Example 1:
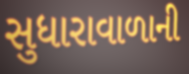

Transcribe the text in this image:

સુધારાવાળાની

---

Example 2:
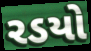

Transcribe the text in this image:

રડયો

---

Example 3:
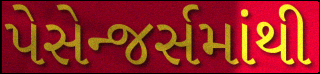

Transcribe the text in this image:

પેસેન્જર્સમાંથી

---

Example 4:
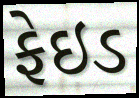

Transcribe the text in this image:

ફેઇડ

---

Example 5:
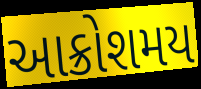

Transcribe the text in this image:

આક્રોશમય